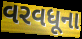
વરવધૂના